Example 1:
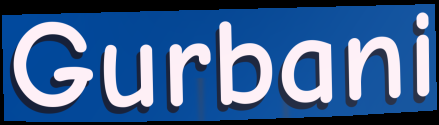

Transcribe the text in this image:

Gurbani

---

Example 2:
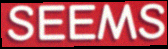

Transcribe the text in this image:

SEEMS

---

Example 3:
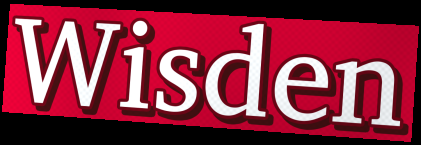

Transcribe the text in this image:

Wisden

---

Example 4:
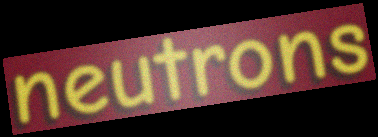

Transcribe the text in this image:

neutrons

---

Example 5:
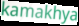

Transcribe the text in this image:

kamakhya